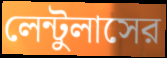
লেন্টুলাসের